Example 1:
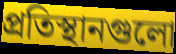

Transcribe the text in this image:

প্রতিস্থানগুলো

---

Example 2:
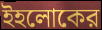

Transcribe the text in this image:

ইহলোকের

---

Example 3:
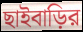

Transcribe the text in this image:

ছাইবাড়ির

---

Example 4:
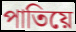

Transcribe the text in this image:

পাতিয়ে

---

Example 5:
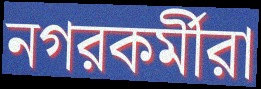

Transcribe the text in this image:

নগরকর্মীরা